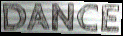
DANCE